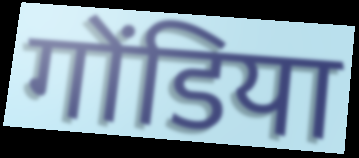
गोंडिया